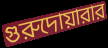
গুরুদোয়ারার